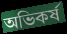
অভিকর্ষ